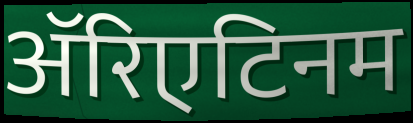
ॲरिएटिनम